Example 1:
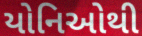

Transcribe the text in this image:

યોનિઓથી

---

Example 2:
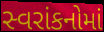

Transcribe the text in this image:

સ્વરાંકનોમાં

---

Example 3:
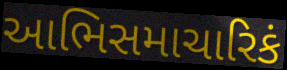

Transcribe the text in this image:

આભિસમાચારિકં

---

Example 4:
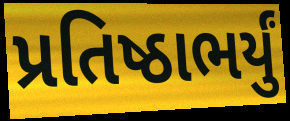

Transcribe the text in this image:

પ્રતિષ્ઠાભર્યું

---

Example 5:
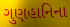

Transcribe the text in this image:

ગુણહાનિના